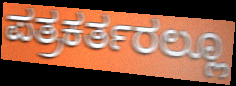
ಪತ್ರಕರ್ತರಲ್ಲೂ